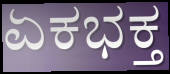
ಏಕಭಕ್ತ